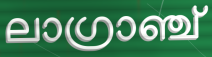
ലാഗ്രാഞ്ച്